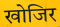
खोजिर